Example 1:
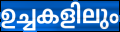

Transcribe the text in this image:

ഉച്ചകളിലും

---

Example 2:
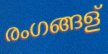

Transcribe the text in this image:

രംഗങ്ങള്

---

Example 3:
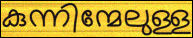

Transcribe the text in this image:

കുന്നിന്മേലുള്ള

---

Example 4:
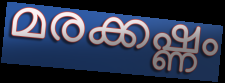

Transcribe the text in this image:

മരക്കഷ്ണം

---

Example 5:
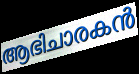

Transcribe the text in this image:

ആഭിചാരകൻ